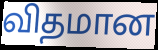
விதமான